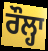
ਰੌਲ੍ਹਾ